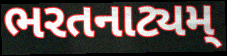
ભરતનાટ્યમ્